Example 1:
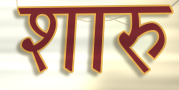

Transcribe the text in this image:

शारु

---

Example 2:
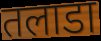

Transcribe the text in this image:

तलाडा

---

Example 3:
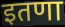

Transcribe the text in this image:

इतणा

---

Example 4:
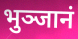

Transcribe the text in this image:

भुञ्जानं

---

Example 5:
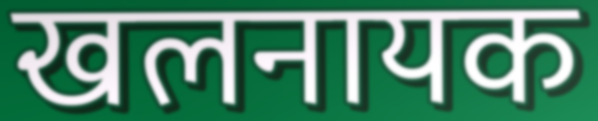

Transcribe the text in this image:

खलनायक